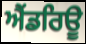
ਐਂਡਰਿਊ